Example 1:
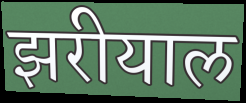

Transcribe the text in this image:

झरीयाल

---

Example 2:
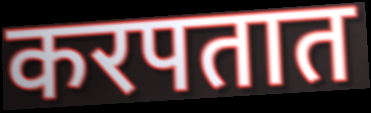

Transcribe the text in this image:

करपतात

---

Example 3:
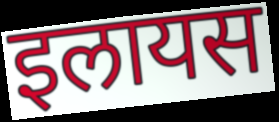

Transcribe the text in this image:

इलायस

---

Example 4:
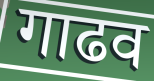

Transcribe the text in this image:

गाढव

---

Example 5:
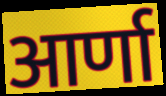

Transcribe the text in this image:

आर्णा